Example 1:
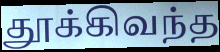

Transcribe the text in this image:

தூக்கிவந்த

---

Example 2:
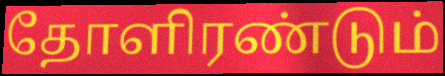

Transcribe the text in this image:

தோளிரண்டும்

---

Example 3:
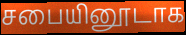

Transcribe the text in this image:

சபையினூடாக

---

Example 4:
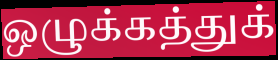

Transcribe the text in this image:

ஒழுக்கத்துக்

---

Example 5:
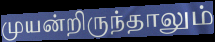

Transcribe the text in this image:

முயன்றிருந்தாலும்